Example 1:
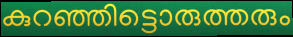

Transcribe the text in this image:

കുറഞ്ഞിട്ടൊരുത്തരും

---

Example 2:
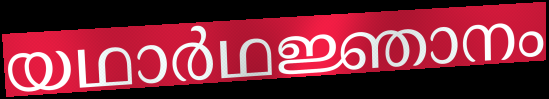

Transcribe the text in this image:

യഥാർഥജ്ഞാനം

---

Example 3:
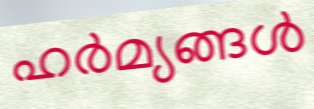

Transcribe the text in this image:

ഹർമ്യങ്ങൾ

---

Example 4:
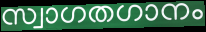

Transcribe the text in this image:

സ്വാഗതഗാനം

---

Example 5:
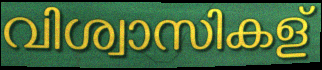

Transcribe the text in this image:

വിശ്വാസികള്